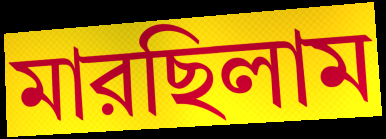
মারছিলাম